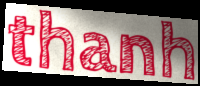
thanh